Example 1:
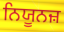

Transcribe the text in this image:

ਨਿਯੂਨਜ਼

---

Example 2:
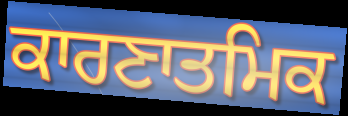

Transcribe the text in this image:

ਕਾਰਣਾਤਮਿਕ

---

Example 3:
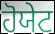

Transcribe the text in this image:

ਹੋਯੇਟ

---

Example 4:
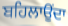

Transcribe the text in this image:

ਬਹਿਲਾਉਂਦਾ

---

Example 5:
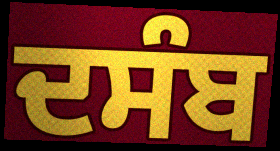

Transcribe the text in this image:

ਦਸੰਬ